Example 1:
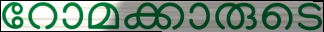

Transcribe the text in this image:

റോമക്കാരുടെ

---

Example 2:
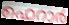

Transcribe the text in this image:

ഫെറാർ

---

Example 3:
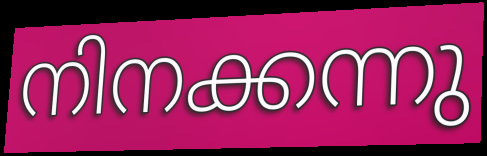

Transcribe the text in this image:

നിനക്കന്നു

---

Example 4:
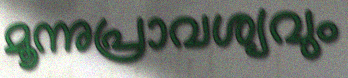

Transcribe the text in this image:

മൂന്നുപ്രാവശ്യവും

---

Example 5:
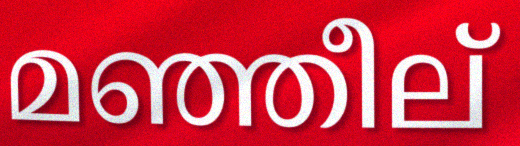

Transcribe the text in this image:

മഞ്ഞീല്